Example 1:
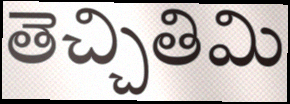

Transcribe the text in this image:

తెచ్చితిమి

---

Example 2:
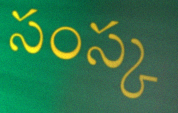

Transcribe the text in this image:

సంస్క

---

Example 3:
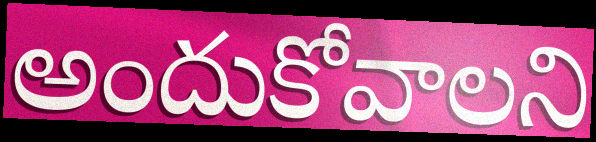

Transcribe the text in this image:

అందుకోవాలని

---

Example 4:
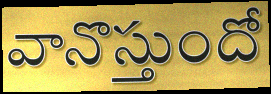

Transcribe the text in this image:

వానొస్తుందో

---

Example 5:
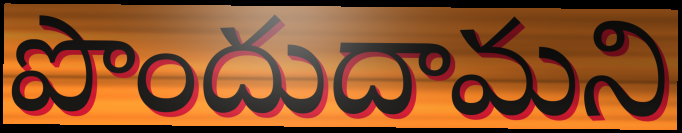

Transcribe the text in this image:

పొందుదామని